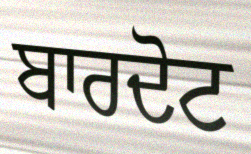
ਬਾਰਦੋਟ